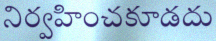
నిర్వహించకూడదు